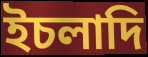
ইচলাদি